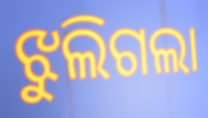
ଝୁଲିଗଲା